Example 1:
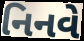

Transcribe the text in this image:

નિનવે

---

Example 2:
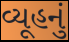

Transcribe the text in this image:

વ્યૂહનું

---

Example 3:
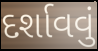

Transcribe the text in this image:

દર્શાવવું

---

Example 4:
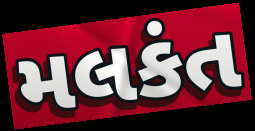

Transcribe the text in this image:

મલકંત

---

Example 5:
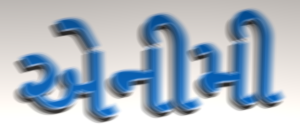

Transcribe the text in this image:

એનીમી